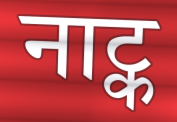
नाट्क